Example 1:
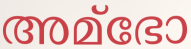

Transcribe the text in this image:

അമ്ഭോ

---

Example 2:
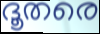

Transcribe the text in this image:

ദൂതരെ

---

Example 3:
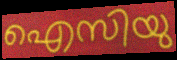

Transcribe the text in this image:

ഐസിയു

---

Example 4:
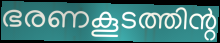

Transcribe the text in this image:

ഭരണകൂടത്തിന്റ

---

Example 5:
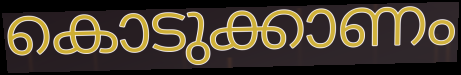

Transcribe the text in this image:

കൊടുക്കാണം